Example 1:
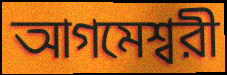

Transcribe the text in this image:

আগমেশ্বরী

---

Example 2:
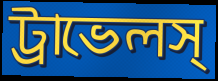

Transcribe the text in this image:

ট্রাভেলস্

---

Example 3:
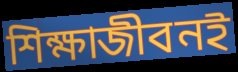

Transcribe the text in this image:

শিক্ষাজীবনই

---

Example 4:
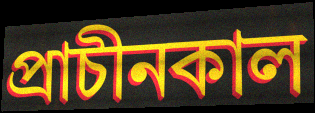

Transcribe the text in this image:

প্রাচীনকাল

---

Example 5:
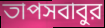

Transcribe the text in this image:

তাপসবাবুর